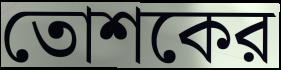
তোশকের